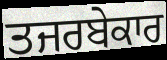
ਤਜਰਬੇਕਾਰ